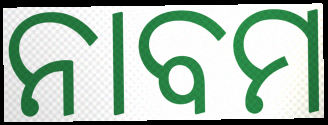
ନାବମ